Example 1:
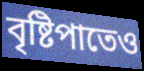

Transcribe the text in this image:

বৃষ্টিপাতেও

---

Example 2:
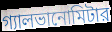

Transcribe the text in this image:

গ্যালভানোমিটার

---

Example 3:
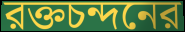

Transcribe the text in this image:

রক্তচন্দনের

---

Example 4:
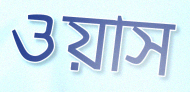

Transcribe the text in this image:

ওয়াস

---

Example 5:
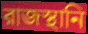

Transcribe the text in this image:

রাজস্থানি